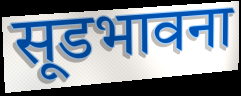
सूडभावना